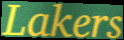
Lakers